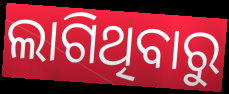
ଲାଗିଥିବାରୁ